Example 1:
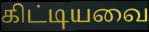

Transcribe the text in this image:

கிட்டியவை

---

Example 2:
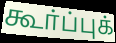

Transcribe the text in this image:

கூர்ப்புக்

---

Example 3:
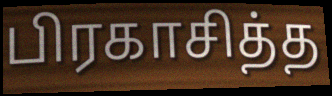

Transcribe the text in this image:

பிரகாசித்த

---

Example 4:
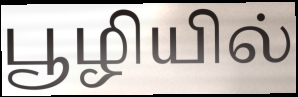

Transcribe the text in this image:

பூழியில்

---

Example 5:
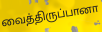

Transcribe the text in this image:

வைத்திருப்பானா